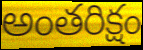
అంతరిక్షం